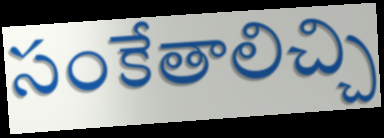
సంకేతాలిచ్చి